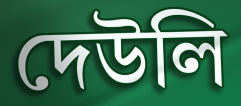
দেউলি